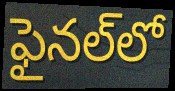
ఫైనల్‌లో